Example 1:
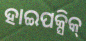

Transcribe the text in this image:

ହାଇପକ୍ସିକ୍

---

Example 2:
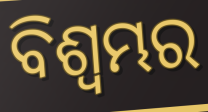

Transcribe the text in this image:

ବିଶ୍ବମ୍ଭର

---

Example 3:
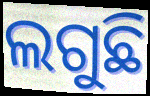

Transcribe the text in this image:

ଲଗୁଛି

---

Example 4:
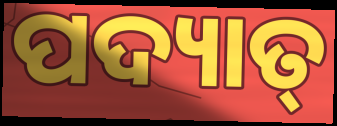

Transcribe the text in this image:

ପଦ୍ୟାତ୍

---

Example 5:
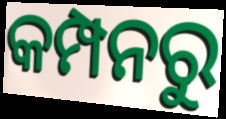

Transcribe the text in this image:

କମ୍ପନରୁ